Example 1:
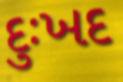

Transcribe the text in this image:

દુઃખદ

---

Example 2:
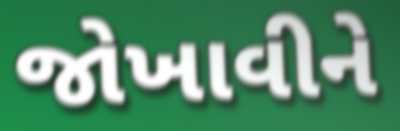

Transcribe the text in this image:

જોખાવીને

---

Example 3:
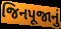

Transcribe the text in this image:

જિનપૂજાનું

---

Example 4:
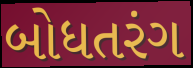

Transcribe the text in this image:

બોધતરંગ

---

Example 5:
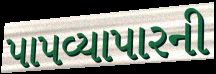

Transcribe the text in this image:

પાપવ્યાપારની